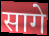
सागे